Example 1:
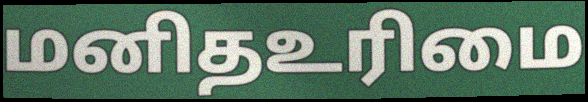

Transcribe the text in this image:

மனிதஉரிமை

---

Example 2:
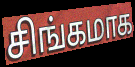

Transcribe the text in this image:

சிங்கமாக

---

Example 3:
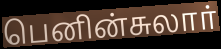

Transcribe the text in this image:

பெனின்சுலார்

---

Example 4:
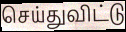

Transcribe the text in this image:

செய்துவிட்டு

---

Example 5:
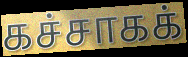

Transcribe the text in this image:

கச்சாகக்